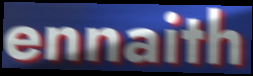
ennaith